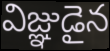
విజ్ఞుడైన